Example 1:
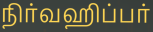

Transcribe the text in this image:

நிர்வஹிப்பர்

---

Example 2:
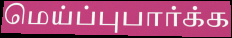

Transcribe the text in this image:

மெய்ப்புபார்க்க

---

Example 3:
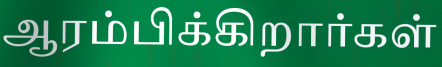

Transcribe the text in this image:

ஆரம்பிக்கிறார்கள்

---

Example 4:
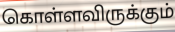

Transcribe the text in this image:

கொள்ளவிருக்கும்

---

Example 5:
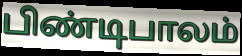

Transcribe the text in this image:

பிண்டிபாலம்